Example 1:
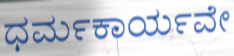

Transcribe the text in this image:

ಧರ್ಮಕಾರ್ಯವೇ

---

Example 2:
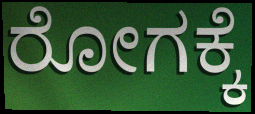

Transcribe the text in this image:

ರೋಗಕ್ಕೆ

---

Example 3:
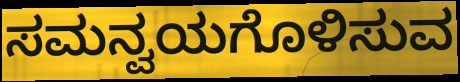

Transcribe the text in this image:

ಸಮನ್ವಯಗೊಳಿಸುವ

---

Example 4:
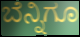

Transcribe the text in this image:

ಬೆನ್ನಿಗೂ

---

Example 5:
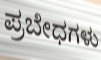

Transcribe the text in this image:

ಪ್ರಬೇಧಗಳು